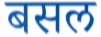
बसल